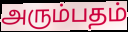
அரும்பதம்